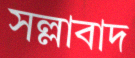
সল্লাবাদ